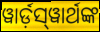
ୱାର୍ଡ଼ସ୍‌ୱାର୍ଥଙ୍କ